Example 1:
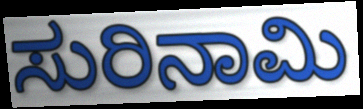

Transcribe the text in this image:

ಸುರಿನಾಮಿ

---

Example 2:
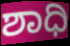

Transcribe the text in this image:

ಶಾಧಿ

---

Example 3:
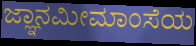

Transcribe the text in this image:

ಜ್ಞಾನಮೀಮಾಂಸೆಯ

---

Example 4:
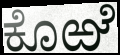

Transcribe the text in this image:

ಕೊಱೆ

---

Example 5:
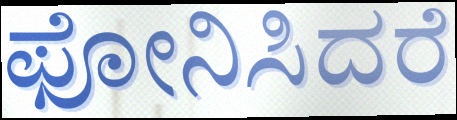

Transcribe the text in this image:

ಫೋನಿಸಿದರೆ